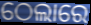
ଠେଲାରେ